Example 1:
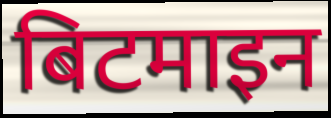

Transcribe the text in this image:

बिटमाइन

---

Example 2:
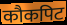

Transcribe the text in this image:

कौकपिट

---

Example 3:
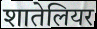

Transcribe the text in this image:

शातेलियर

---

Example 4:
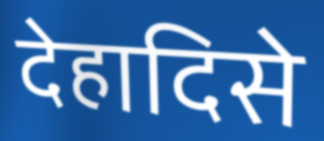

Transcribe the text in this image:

देहादिसे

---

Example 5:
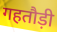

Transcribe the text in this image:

गहतौड़ी